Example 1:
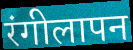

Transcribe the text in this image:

रंगीलापन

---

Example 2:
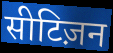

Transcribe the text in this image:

सीटिज़न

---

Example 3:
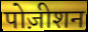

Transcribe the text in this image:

पोज़ीशन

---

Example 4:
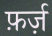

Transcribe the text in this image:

फ़र्ज़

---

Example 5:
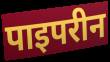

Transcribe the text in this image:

पाइपरीन